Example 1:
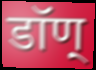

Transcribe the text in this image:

डॉण्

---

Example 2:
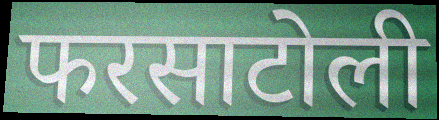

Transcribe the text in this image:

फरसाटोली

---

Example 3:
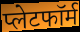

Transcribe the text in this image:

प्लेटफॉर्म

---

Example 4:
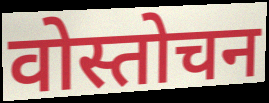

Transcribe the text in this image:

वोस्तोचन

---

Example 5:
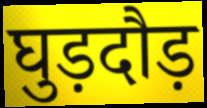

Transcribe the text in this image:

घुड़दौड़